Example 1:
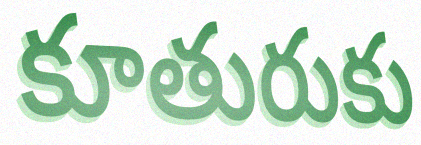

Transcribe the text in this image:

కూతురుకు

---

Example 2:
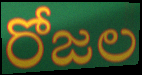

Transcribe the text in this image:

రోజల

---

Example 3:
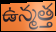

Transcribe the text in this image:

ఉన్మత్త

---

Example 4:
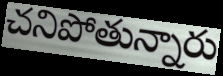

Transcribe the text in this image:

చనిపోతున్నారు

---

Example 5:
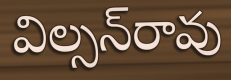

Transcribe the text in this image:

విల్సన్‌రావు